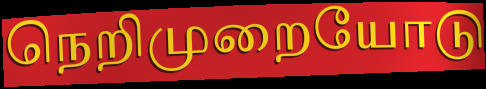
நெறிமுறையோடு